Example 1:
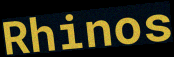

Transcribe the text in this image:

Rhinos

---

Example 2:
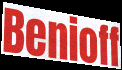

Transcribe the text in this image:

Benioff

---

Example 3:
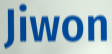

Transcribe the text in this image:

Jiwon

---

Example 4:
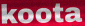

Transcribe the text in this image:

koota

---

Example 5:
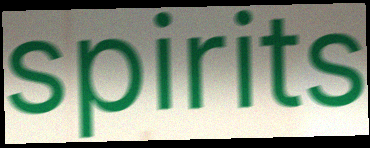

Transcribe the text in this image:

spirits